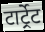
टार्ट्रेट